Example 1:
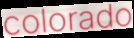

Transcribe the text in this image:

colorado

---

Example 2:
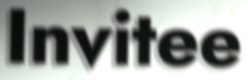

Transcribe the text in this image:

Invitee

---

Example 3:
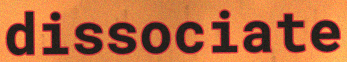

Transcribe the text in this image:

dissociate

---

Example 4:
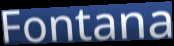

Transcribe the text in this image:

Fontana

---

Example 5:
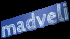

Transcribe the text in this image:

madveli